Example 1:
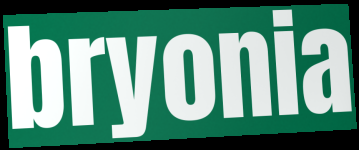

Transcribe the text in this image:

bryonia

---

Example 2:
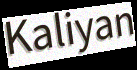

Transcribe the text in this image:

Kaliyan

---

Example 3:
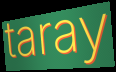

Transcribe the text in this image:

taray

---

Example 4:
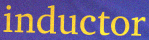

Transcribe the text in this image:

inductor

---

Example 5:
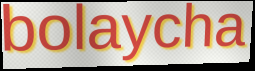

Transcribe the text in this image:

bolaycha